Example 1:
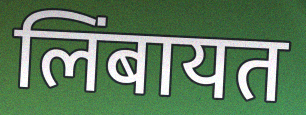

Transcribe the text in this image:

लिंबायत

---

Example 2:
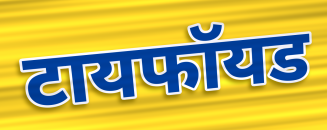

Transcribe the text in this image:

टायफॉयड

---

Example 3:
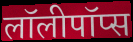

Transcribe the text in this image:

लॉलीपॉप्स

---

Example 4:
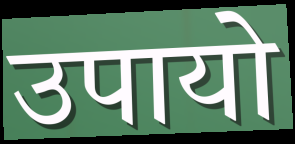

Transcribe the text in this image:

उपायो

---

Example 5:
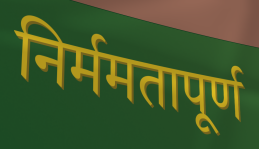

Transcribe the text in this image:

निर्ममतापूर्ण